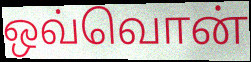
ஒவ்வொன்